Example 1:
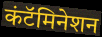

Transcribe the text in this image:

कंटॅमिनेशन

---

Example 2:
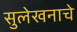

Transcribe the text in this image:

सुलेखनाचे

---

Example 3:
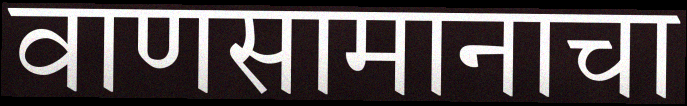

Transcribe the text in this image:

वाणसामानाचा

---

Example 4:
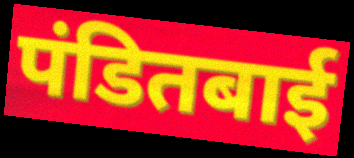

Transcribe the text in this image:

पंडितबाई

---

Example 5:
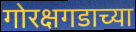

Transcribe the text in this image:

गोरक्षगडाच्या